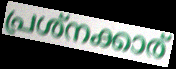
പ്രശ്നക്കാര്